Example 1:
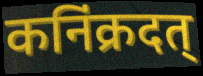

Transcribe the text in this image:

कनि॑क्रदत्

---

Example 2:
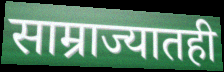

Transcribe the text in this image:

साम्राज्यातही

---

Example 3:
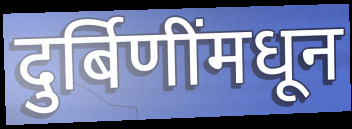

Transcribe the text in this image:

दुर्बिणींमधून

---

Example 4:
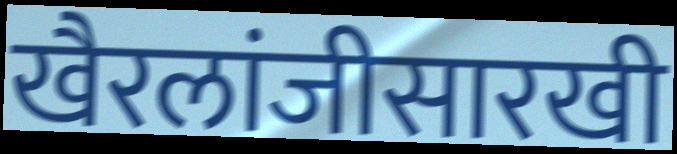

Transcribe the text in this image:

खैरलांजीसारखी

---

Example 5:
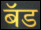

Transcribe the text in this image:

बॅड